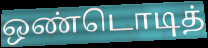
ஒண்டொடித்